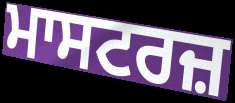
ਮਾਸਟਰਜ਼